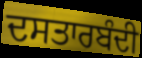
ਦਸਤਾਰਬੰਦੀ